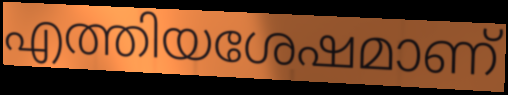
എത്തിയശേഷമാണ്